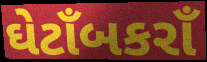
ઘેટાઁબકરાઁ